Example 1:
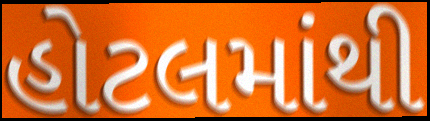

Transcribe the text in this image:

હોટલમાંથી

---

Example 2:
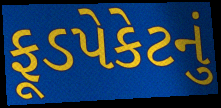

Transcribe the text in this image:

ફૂડપેકેટનું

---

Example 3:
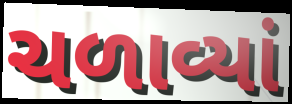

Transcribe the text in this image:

ચળાવ્યાં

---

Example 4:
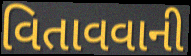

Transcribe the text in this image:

વિતાવવાની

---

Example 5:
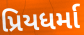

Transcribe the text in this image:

પ્રિયધર્મા